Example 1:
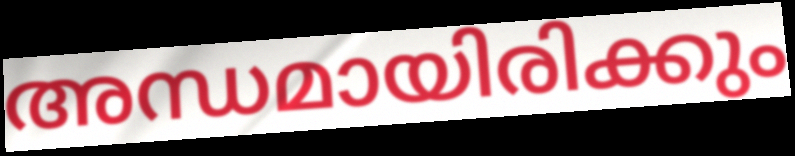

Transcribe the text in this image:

അന്ധമായിരിക്കും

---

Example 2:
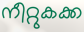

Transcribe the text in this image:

നീറ്റുകക്ക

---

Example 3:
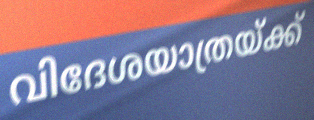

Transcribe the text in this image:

വിദേശയാത്രയ്ക്ക്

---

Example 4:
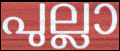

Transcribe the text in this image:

പുല്ലാ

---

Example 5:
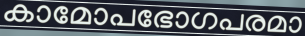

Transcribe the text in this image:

കാമോപഭോഗപരമാ